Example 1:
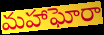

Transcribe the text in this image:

మహాఘోరా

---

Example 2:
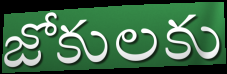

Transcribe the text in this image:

జోకులకు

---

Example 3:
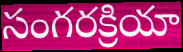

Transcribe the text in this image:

సంగరక్రియా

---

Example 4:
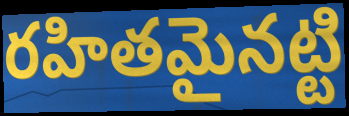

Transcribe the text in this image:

రహితమైనట్టి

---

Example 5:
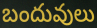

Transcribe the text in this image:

బందువులు